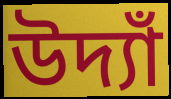
উদ্যাঁ